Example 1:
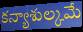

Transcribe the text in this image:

కన్యాశుల్కమే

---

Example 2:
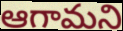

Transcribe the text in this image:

ఆగామని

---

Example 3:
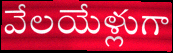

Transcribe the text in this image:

వేలయేళ్లుగా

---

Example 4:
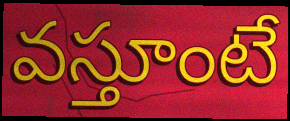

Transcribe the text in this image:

వస్తూంటే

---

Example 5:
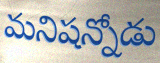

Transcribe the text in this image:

మనిషన్నోడు